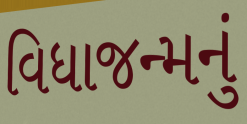
વિધાજન્મનું